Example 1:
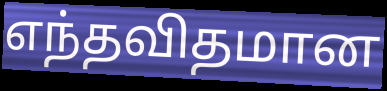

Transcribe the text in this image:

எந்தவிதமான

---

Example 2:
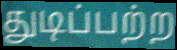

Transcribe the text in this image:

துடிப்பற்ற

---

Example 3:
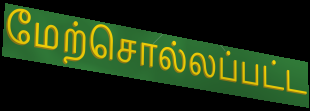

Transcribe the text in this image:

மேற்சொல்லப்பட்ட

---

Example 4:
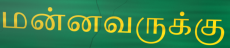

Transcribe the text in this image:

மன்னவருக்கு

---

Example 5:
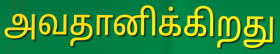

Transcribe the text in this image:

அவதானிக்கிறது